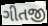
ગીતજી